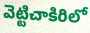
వెట్టిచాకిరిలో